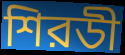
শিরডী